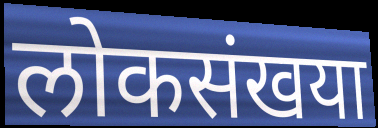
लोकसंखया